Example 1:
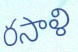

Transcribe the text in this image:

రసాళి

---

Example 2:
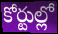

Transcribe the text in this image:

కోర్టుల్లో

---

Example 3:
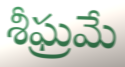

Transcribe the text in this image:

శీఘ్రమే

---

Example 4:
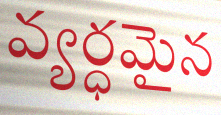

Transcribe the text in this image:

వ్యర్ధమైన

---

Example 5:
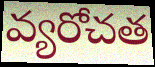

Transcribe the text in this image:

వ్యరోచత